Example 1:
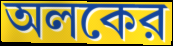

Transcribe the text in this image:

অলকের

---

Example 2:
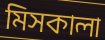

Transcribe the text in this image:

মিসকালা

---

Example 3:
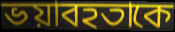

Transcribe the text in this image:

ভয়াবহতাকে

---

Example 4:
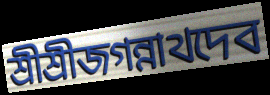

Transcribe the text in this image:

শ্রীশ্রীজগন্নাথদেব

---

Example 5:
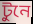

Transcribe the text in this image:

টুনে